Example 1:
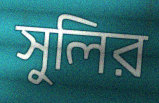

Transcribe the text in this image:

সুলির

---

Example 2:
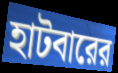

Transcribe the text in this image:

হাটবারের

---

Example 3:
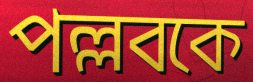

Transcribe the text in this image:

পল্লবকে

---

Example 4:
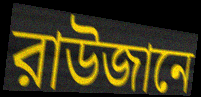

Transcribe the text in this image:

রাউজানে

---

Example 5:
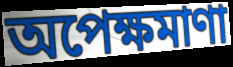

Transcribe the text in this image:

অপেক্ষমাণা